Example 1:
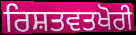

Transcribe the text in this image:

ਰਿਸ਼ਤਵਤਖੋਰੀ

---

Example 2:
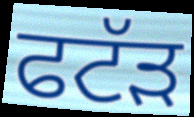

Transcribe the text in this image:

ਫਟੱੜ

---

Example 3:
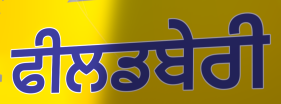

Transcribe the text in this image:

ਫੀਲਡਬੇਰੀ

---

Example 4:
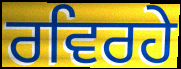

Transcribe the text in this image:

ਰਵਿਰਹੇ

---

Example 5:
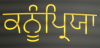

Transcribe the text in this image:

ਕਨੂੰਪ੍ਰਿਯਾ